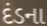
દંડના